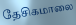
தேசிகமாலை